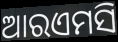
ଆରଏମସି